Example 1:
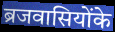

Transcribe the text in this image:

ब्रजवासियोंके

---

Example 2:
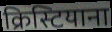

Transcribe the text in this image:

क्रिस्टियाना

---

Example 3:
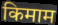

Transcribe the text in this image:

किमाम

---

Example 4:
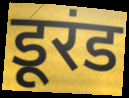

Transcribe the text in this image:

डूरंड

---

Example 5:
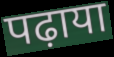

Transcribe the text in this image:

पढ़ाया